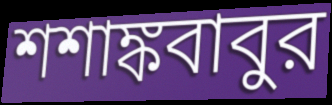
শশাঙ্কবাবুর